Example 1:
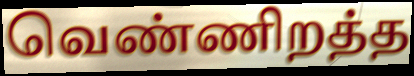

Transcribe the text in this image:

வெண்ணிறத்த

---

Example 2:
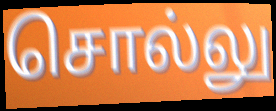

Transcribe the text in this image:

சொல்லு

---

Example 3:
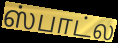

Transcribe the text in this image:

ஸ்பாட்ல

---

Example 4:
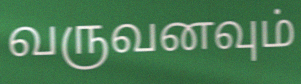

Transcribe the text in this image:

வருவனவும்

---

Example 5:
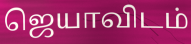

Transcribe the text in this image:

ஜெயாவிடம்